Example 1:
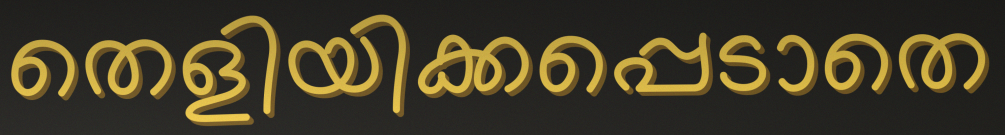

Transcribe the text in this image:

തെളിയിക്കപ്പെടാതെ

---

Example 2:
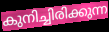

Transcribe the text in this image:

കുനിച്ചിരിക്കുന്ന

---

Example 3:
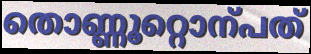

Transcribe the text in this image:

തൊണ്ണൂറ്റൊന്പത്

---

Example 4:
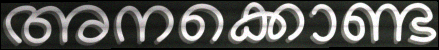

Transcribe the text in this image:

അനക്കൊണ്ട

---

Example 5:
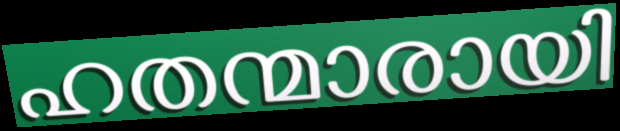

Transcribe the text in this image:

ഹതന്മാരായി